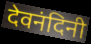
देवनंदिनी